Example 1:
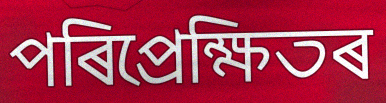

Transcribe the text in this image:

পৰিপ্ৰেক্ষিতৰ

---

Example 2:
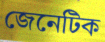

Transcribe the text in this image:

জেনেটিক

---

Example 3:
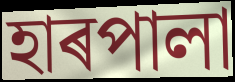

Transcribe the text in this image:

হাৰপালা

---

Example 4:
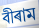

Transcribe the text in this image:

বীৰাম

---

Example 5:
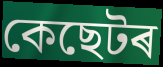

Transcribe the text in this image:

কেছেটৰ